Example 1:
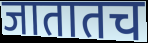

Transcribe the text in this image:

जातातच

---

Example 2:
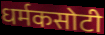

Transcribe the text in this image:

धर्मकसोटी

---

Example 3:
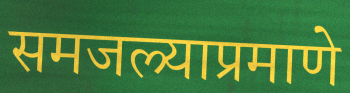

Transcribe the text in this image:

समजल्याप्रमाणे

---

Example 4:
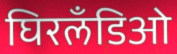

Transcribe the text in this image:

घिरलँडिओ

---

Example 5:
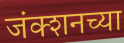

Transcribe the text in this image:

जंक्शनच्या